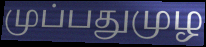
முப்பதுமுழ